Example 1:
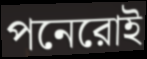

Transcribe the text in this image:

পনেরোই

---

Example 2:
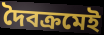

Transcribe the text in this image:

দৈবক্রমেই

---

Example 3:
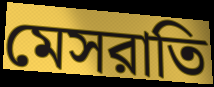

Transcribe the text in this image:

মেসরাতি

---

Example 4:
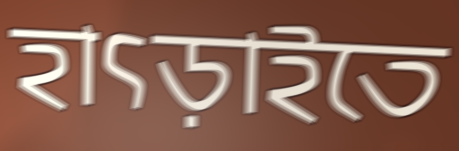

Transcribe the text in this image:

হাৎড়াইতে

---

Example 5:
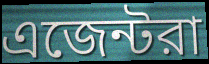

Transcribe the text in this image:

এজেন্টরা